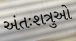
અંતઃશત્રુઓ